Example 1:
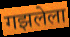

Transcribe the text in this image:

गझलेला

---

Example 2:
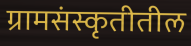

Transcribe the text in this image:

ग्रामसंस्कृतीतील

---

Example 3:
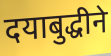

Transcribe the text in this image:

दयाबुद्धीने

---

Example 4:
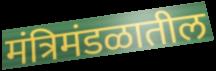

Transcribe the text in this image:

मंत्रिमंडळातील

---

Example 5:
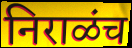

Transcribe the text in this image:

निराळंच